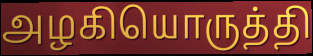
அழகியொருத்தி